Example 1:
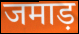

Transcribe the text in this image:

जमाड़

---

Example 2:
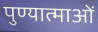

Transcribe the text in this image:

पुण्यात्माओं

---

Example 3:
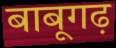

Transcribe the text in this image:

बाबूगढ़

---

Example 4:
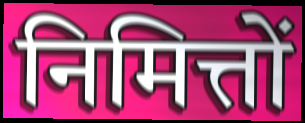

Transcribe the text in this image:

निमित्तों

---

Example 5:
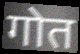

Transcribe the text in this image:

गोत